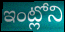
ఇంట్లోని